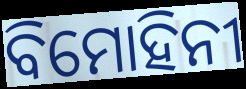
ବିମୋହିନୀ